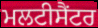
ਮਲਟੀਸੈਂਟਰ